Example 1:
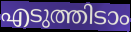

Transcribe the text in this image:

എടുത്തിടാം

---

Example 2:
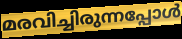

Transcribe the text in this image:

മരവിച്ചിരുന്നപ്പോൾ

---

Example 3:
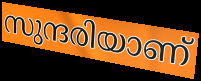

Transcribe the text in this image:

സുന്ദരിയാണ്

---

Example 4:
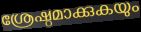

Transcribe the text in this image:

ശ്രേഷ്ഠമാക്കുകയും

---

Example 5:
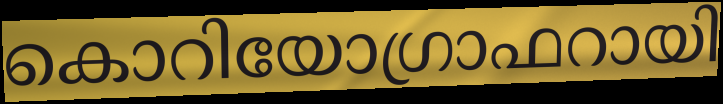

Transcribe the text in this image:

കൊറിയോഗ്രാഫറായി